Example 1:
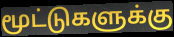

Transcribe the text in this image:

மூட்டுகளுக்கு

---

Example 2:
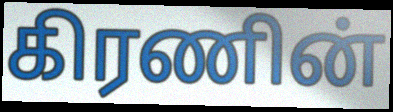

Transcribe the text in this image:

கிரணின்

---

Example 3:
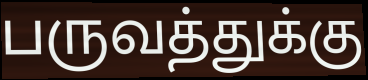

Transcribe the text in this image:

பருவத்துக்கு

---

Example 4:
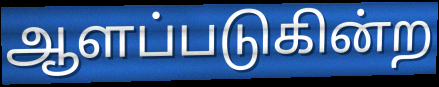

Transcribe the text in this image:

ஆளப்படுகின்ற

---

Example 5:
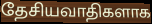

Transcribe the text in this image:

தேசியவாதிகளாக